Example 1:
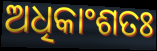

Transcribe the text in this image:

ଅଧିକାଂଶତଃ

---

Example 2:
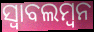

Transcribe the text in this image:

ସ୍ୱାବଲମ୍ବନ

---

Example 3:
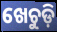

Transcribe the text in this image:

ଖେଚୁଡ଼ି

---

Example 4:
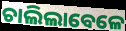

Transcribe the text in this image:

ଚାଲିଲାବେଳେ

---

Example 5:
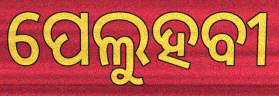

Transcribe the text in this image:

ପେଲୁହବୀ